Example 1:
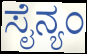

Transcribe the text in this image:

ಸೈನ್ಯಂ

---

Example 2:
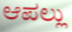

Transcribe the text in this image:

ಆಪಲ್ಲು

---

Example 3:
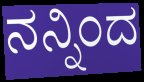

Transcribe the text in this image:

ನನ್ನಿಂದ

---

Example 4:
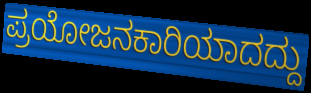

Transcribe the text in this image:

ಪ್ರಯೋಜನಕಾರಿಯಾದದ್ದು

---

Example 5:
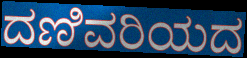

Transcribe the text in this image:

ದಣಿವರಿಯದ